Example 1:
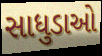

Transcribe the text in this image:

સાધુડાઓ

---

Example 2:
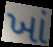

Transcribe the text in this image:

ખાં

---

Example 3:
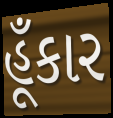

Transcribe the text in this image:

હૂઁકાર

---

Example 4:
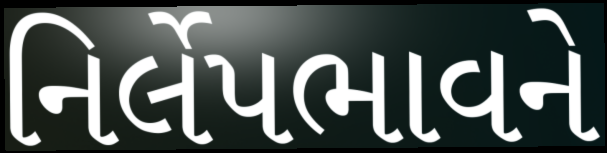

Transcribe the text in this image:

નિર્લેપભાવને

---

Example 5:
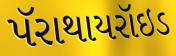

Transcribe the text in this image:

પૅરાથાયરૉઇડ